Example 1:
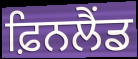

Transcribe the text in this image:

ਫ਼ਿਨਲੈਂਡ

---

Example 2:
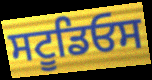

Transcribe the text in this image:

ਸਟੂਡਿਓਸ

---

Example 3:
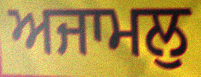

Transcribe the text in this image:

ਅਜਾਮਲੁ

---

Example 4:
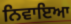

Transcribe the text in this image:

ਨਿਵਾਇਆ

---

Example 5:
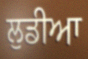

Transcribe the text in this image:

ਲੁਡੀਆ